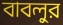
বাবলুর